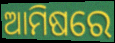
ଆମିଷରେ